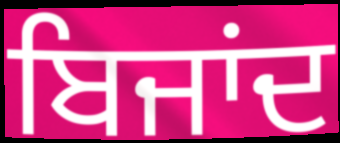
ਬਿਜਾਂਦ